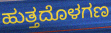
ಹುತ್ತದೊಳಗಣ